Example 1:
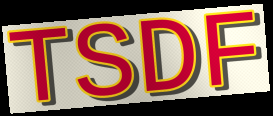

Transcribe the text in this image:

TSDF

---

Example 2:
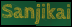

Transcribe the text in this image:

Sanjikai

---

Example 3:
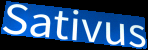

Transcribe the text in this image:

Sativus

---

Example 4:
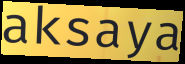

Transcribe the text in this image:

aksaya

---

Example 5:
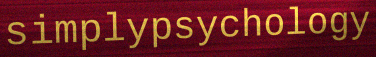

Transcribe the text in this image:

simplypsychology